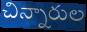
చిన్నారుల